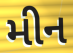
મીન